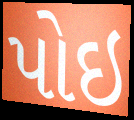
પોઇ